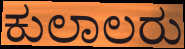
ಕುಲಾಲರು